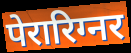
पेरारिग्नर